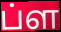
ப்ள